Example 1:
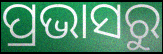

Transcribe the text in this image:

ପ୍ରଭାସରୁ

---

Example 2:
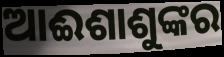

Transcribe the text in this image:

ଆଈଶାଶୁଙ୍କର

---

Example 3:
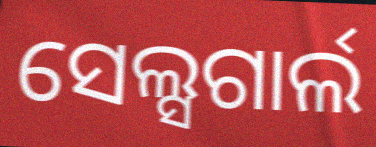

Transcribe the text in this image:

ସେଲ୍ସଗାର୍ଲ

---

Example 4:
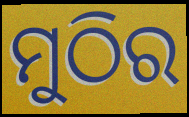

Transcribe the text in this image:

ମୁଠିର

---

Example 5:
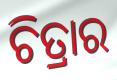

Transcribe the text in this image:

ଚିତ୍ରାର